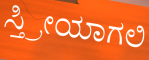
ಸ್ತ್ರೀಯಾಗಲಿ